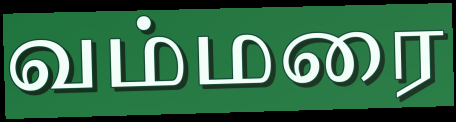
வம்மரை